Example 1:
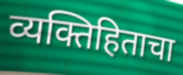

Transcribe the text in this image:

व्यक्तिहिताचा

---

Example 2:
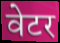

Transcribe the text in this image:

वेटर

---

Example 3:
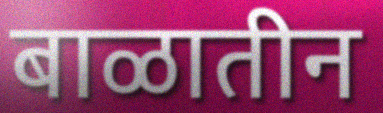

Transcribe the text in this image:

बाळातीन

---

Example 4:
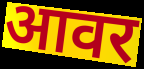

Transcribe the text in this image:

आवर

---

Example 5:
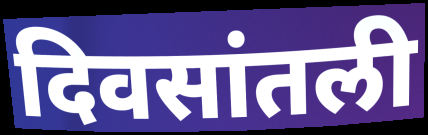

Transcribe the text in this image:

दिवसांतली